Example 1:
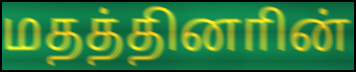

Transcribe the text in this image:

மதத்தினரின்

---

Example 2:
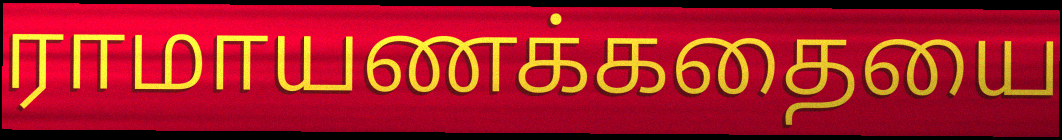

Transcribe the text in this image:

ராமாயணக்கதையை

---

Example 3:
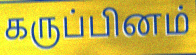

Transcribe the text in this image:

கருப்பினம்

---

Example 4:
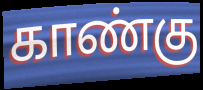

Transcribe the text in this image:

காண்கு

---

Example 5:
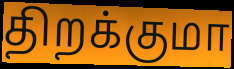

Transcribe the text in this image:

திறக்குமா